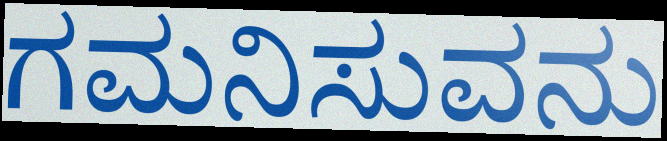
ಗಮನಿಸುವನು